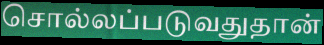
சொல்லப்படுவதுதான்